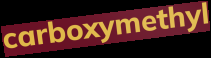
carboxymethyl